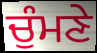
ਚੁੰਮਣੇ